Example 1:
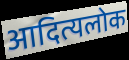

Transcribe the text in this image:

आदित्यलोक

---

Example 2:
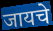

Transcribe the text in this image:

जायचे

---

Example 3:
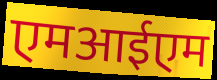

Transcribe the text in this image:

एमआईएम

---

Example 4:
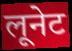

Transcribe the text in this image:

लूनेट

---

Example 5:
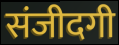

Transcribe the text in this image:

संजीदगी